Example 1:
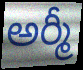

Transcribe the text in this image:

అర్మీ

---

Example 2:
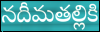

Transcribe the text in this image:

నదీమతల్లికి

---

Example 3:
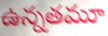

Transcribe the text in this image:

ఉన్నతమూ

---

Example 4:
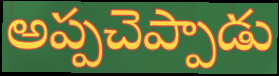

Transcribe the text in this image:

అప్పచెప్పాడు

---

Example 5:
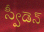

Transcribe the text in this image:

స్వీడెన్